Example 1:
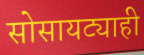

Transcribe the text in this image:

सोसायट्याही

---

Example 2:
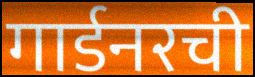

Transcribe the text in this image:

गार्डनरची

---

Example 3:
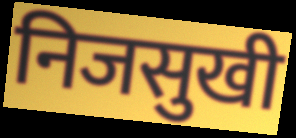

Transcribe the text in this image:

निजसुखी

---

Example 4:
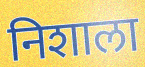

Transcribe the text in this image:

निशाला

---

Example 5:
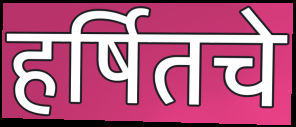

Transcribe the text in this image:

हर्षितचे